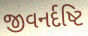
જીવનર્દષ્ટિ